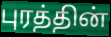
புரத்தின்